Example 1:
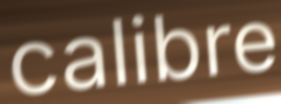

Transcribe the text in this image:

calibre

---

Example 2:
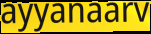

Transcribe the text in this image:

ayyanaarv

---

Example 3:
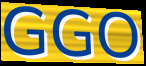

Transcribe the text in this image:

GGO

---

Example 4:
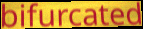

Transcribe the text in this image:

bifurcated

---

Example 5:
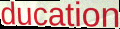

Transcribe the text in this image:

ducation